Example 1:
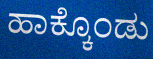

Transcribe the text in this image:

ಹಾಕ್ಕೊಂಡು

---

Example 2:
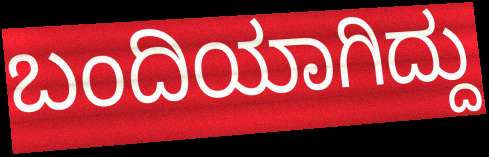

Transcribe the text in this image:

ಬಂದಿಯಾಗಿದ್ದು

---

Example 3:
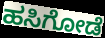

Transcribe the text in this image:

ಹಸಿಗೋಡೆ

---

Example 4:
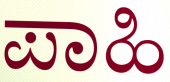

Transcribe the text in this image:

ಪಾಹಿ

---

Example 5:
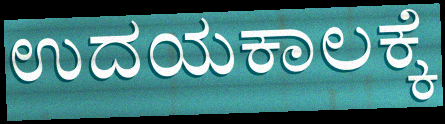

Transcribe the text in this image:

ಉದಯಕಾಲಕ್ಕೆ